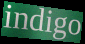
indigo